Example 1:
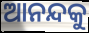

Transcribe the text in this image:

ଆନନ୍ଦକୁ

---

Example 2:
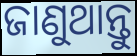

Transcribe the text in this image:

ଜାଣୁଥାନ୍ତୁ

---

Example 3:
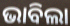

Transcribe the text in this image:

ଭାବିଲା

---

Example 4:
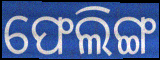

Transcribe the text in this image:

ଫେଲିଙ୍ଗ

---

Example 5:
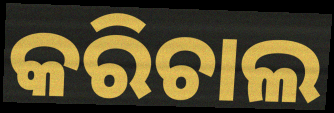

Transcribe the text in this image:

କରିଚାଲ